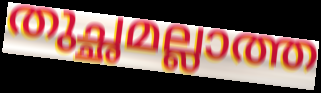
തുച്ഛമല്ലാത്ത